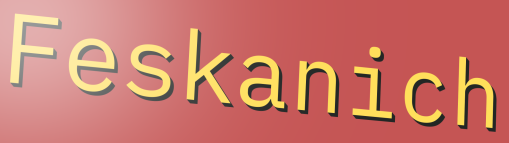
Feskanich